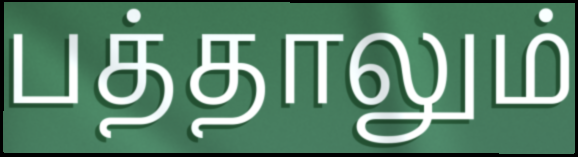
பத்தாலும்